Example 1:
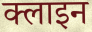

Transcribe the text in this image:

क्लाइन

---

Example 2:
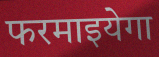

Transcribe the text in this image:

फरमाइयेगा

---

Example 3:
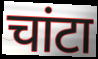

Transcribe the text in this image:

चांटा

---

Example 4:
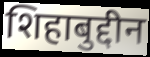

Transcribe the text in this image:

शिहाबुद्दीन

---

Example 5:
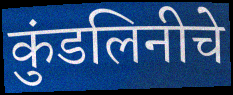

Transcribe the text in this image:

कुंडलिनीचे